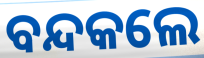
ବନ୍ଦକଲେ